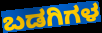
ಬಡಗಿಗಳ